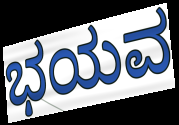
ಭಯವ